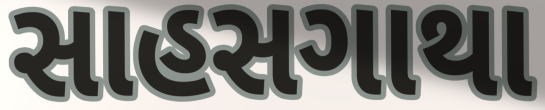
સાહસગાથા